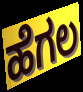
ಹೆಗಲ